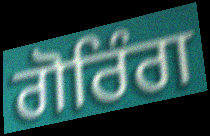
ਗੋਰਿੰਗ